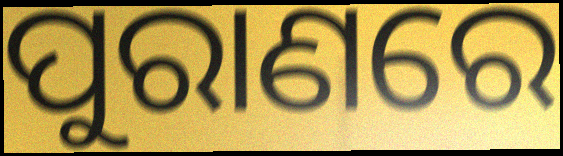
ପୁରାଣରେ